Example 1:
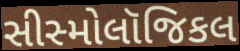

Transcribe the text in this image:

સીસ્મોલૉજિકલ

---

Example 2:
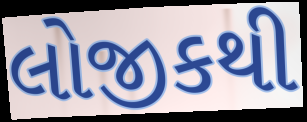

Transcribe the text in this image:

લોજીકથી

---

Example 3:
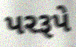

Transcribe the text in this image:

પરરૂપે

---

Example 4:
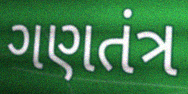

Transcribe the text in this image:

ગણતંત્ર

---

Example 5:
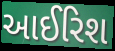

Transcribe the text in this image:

આઈરિશ